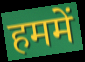
हममें